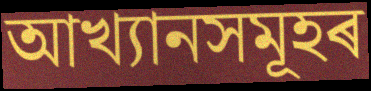
আখ্যানসমূহৰ